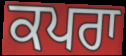
ਕਪਰਾ